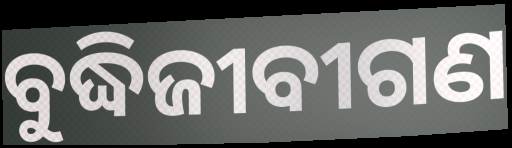
ବୁଦ୍ଧିଜୀବୀଗଣ